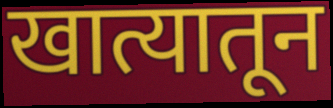
खात्यातून